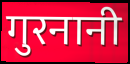
गुरनानी